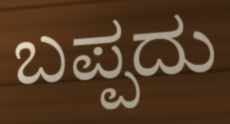
ಬಪ್ಪದು